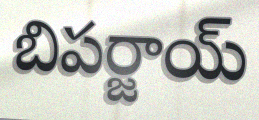
బిపర్జాయ్